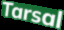
Tarsal